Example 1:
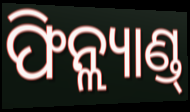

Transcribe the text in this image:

ଫିନ୍ଲ୍ୟାଣ୍ଡ୍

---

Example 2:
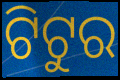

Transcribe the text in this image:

ଟିଟୁର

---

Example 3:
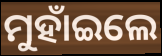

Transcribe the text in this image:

ମୁହାଁଇଲେ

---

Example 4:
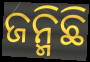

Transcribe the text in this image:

ଜନ୍ମିଛି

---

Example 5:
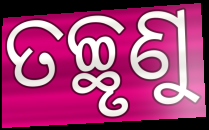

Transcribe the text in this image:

ତଚ୍ଛୃଣୁ